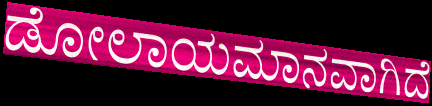
ಡೋಲಾಯಮಾನವಾಗಿದೆ